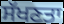
ਸੱਖਣਤਾ